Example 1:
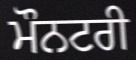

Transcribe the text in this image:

ਮੌਨਟਰੀ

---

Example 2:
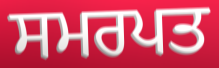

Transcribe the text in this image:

ਸਮਰਪਤ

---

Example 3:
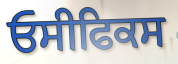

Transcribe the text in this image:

ਓਸੀਫਿਕਸ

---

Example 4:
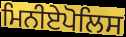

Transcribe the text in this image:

ਮਿਨੀਏਪੋਲਿਸ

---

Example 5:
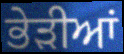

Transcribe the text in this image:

ਭੇੜੀਆਂ